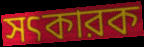
সৎকারক